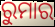
ରୁମାର